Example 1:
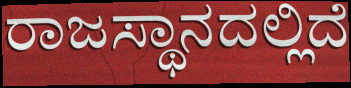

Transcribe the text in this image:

ರಾಜಸ್ಥಾನದಲ್ಲಿದೆ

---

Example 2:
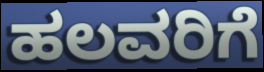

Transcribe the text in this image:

ಹಲವರಿಗೆ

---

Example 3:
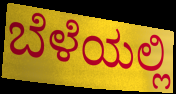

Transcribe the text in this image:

ಬೆಳೆಯಲ್ಲಿ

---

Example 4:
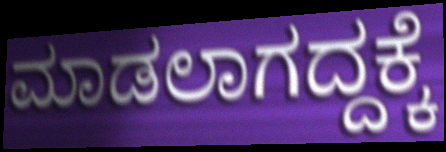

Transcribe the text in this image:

ಮಾಡಲಾಗದ್ದಕ್ಕೆ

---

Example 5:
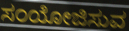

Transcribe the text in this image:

ಸಂಯೋಜಿಸುವ